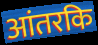
आंतरकि